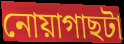
নোয়াগাছটা